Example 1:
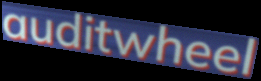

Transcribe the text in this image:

auditwheel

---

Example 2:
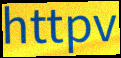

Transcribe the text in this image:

httpv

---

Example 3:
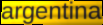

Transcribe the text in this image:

argentina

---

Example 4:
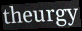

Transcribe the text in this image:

theurgy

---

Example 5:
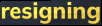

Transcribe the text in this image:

resigning